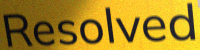
Resolved